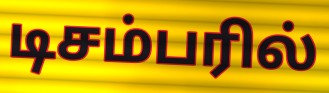
டிசம்பரில்